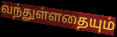
வந்துள்ளதையும்